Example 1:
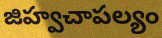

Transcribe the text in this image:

జిహ్వచాపల్యం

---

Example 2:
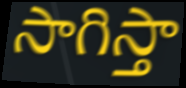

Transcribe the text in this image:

సాగిస్తా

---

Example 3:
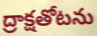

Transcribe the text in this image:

ద్రాక్షతోటను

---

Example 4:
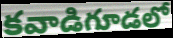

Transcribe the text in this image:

కవాడిగూడలో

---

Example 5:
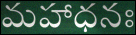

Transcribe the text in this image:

మహాధనః